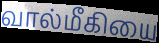
வால்மீகியை